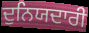
ਦੁਨਿਯਦਾਰੀ